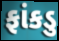
ફાંકડુ